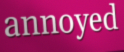
annoyed